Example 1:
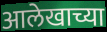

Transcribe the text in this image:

आलेखाच्या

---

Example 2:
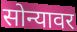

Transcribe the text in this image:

सोन्यावर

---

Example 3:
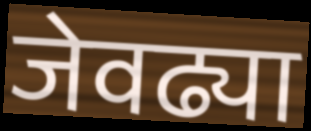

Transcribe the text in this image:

जेवढ्या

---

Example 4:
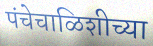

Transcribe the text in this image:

पंचेचाळिशीच्या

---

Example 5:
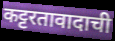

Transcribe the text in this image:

कट्टरतावादाची